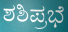
ಶಶಿಪ್ರಭೆ